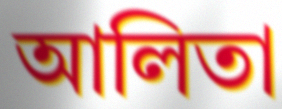
আলিতা